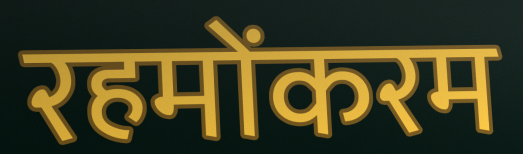
रहमोंकरम